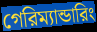
গেরিম্যান্ডারিং